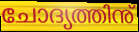
ചോദ്യത്തിനു്